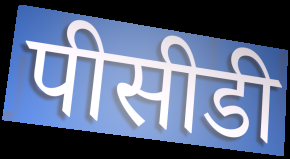
पीसीडी